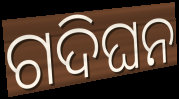
ଗଦିଘନ